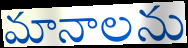
మానాలను